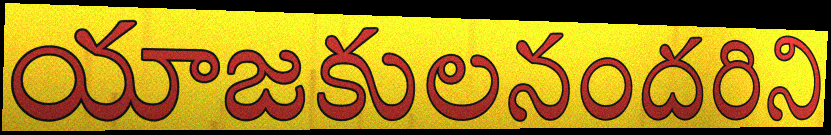
యాజకులనందరిని